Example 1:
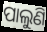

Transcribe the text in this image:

ପାଲୁଣି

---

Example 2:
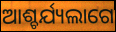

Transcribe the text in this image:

ଆଶ୍ଚର୍ଯ୍ୟଲାଗେ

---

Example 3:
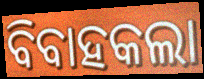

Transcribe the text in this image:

ବିବାହକଲା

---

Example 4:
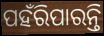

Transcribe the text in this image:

ପହଁରିପାରନ୍ତି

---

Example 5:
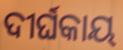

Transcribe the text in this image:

ଦୀର୍ଘକାୟ